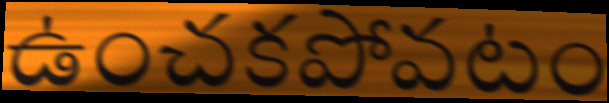
ఉంచకపోవటం